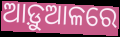
ଆଡ଼ୁଆଳରେ